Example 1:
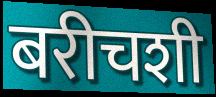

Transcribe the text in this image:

बरीचशी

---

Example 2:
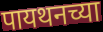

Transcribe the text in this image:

पायथनच्या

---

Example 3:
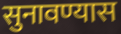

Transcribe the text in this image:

सुनावण्यास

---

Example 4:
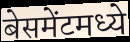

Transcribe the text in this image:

बेसमेंटमध्ये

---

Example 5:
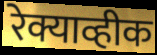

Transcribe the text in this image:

रेक्याव्हीक